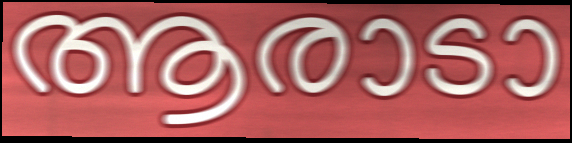
ആരാടാ